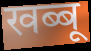
खब्‍बू